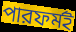
পারফর্মই